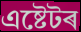
এষ্টেটৰ